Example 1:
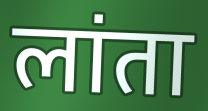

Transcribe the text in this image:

लांता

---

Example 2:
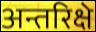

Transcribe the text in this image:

अन्तरिक्षे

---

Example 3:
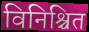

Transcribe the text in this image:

विनिश्चित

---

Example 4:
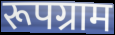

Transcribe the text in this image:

रूपग्राम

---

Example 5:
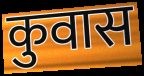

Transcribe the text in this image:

कुवास